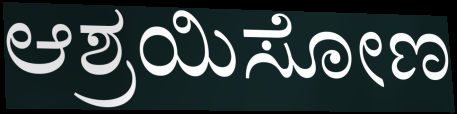
ಆಶ್ರಯಿಸೋಣ